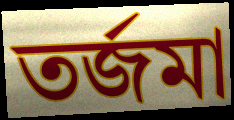
তর্জমা